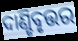
ଦାଣ୍ଡିବୃତ୍ତର